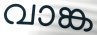
വാങ്ക